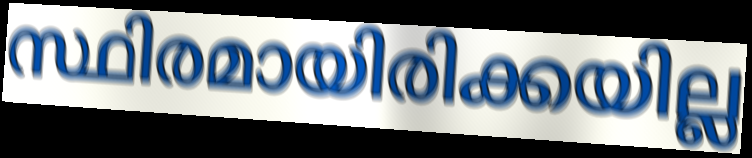
സ്ഥിരമായിരിക്കയില്ല